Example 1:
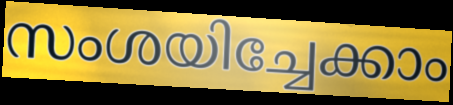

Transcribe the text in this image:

സംശയിച്ചേക്കാം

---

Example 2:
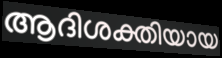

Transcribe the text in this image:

ആദിശക്തിയായ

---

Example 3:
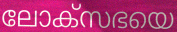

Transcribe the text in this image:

ലോക്സഭയെ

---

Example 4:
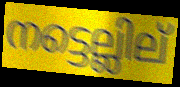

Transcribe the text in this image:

നട്ടെല്ലില്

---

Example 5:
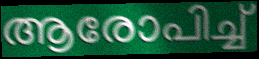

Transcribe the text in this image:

ആരോപിച്ച്